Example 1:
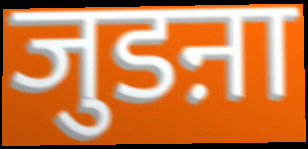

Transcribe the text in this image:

जुडऩा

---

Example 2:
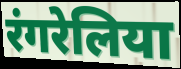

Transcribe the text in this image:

रंगरेलिया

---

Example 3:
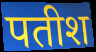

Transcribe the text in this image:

पतीश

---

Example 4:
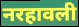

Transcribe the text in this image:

नरहावली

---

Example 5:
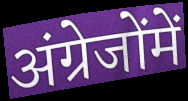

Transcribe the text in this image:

अंग्रेजोंमें